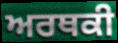
ਅਰਥਕੀ